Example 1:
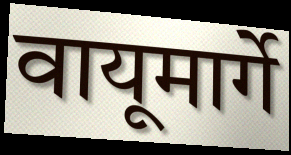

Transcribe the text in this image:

वायूमार्गे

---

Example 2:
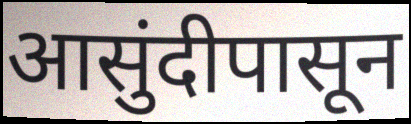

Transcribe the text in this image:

आसुंदीपासून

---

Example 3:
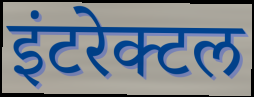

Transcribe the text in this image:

इंटरेक्टल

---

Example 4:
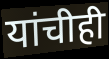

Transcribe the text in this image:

यांचीही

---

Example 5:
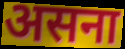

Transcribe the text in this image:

असना